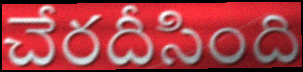
చేరదీసింది